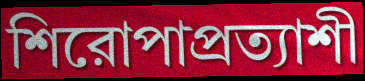
শিরোপাপ্রত্যাশী